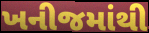
ખનીજમાંથી